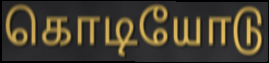
கொடியோடு